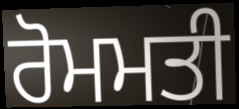
ਰੋਮਮਤੀ